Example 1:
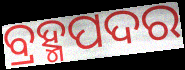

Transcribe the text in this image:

ବ୍ରହ୍ମପଦର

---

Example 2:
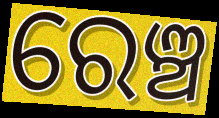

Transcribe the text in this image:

ରେଞ୍ଚ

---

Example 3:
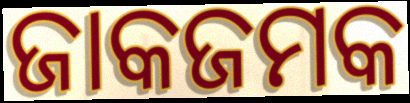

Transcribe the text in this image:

ଜାକଜମକ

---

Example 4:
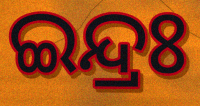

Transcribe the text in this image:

ଇନ୍ଦ୍ରଃ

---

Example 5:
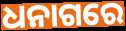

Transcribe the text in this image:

ଧନାଗରେ